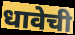
धावेची